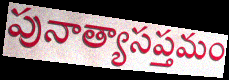
పునాత్యాసప్తమం